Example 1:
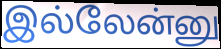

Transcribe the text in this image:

இல்லேன்னு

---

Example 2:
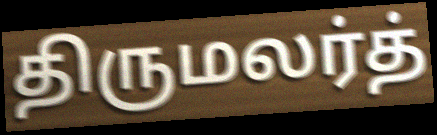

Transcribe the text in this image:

திருமலர்த்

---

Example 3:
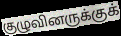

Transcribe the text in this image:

குழுவினருக்குக்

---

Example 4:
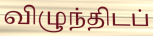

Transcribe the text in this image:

விழுந்திடப்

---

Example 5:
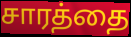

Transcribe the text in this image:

சாரத்தை